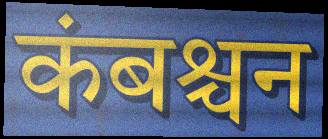
कंबश्चन